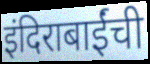
इंदिराबाईंची